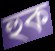
হুক